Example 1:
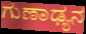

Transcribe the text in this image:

ಗುಣಾಢ್ಯನ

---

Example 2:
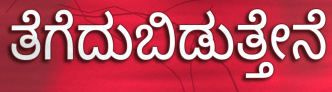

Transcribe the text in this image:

ತೆಗೆದುಬಿಡುತ್ತೇನೆ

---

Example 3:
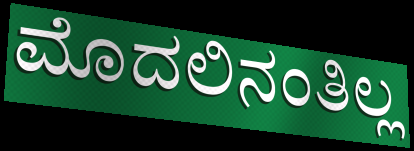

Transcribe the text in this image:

ಮೊದಲಿನಂತಿಲ್ಲ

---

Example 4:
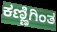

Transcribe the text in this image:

ಕಣ್ಣಿಗಿಂತ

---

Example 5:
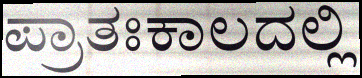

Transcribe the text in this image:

ಪ್ರಾತಃಕಾಲದಲ್ಲಿ